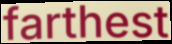
farthest